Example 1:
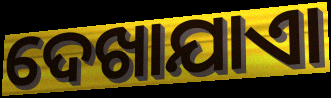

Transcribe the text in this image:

ଦେଖାଯାଏା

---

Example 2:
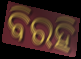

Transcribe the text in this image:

ବିରହି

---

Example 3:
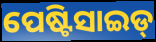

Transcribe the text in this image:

ପେଷ୍ଟିସାଇଡ୍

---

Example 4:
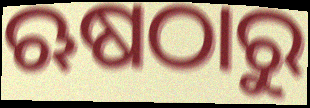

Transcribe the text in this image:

ଋଷଠାରୁ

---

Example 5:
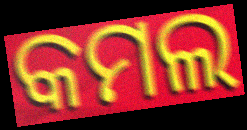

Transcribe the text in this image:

କମଲ